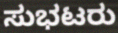
ಸುಭಟರು